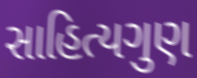
સાહિત્યગુણ